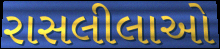
રાસલીલાઓ